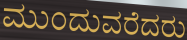
ಮುಂದುವರೆದರು